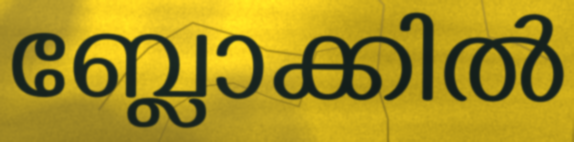
ബ്ലോക്കിൽ